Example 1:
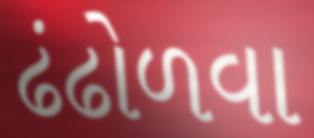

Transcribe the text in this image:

ઢંઢોળવા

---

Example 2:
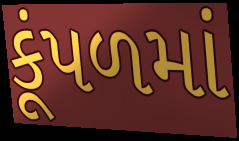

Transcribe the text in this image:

કૂંપળમાં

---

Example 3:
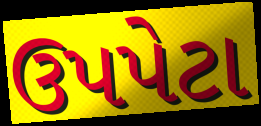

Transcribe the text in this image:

ઉપપેટા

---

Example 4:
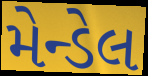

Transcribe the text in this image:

મેન્ડેલ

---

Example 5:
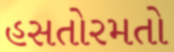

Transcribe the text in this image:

હસતોરમતો